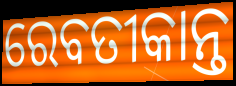
ରେବତୀକାନ୍ତ